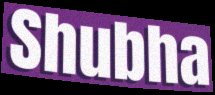
Shubha